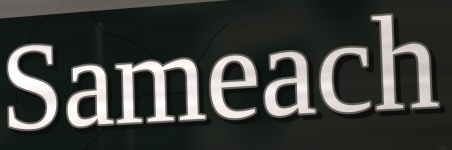
Sameach